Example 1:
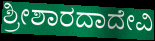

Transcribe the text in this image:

ಶ್ರೀಶಾರದಾದೇವಿ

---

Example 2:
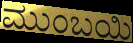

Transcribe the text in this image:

ಮುಂಬಯಿ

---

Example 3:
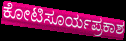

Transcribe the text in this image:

ಕೋಟಿಸೂರ್ಯಪ್ರಕಾಶ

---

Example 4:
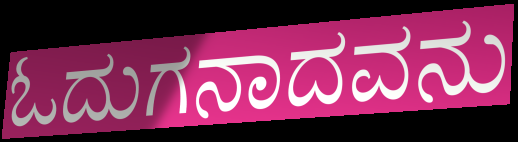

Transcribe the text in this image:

ಓದುಗನಾದವನು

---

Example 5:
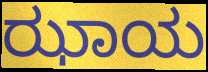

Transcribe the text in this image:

ಝಾಯ